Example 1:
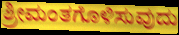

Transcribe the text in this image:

ಶ್ರೀಮಂತಗೊಳಿಸುವುದು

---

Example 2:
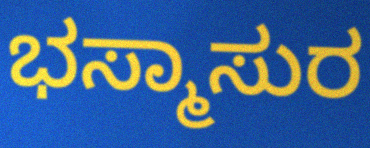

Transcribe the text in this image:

ಭಸ್ಮಾಸುರ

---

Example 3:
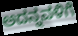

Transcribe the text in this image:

ಅದನ್ನವಳಿಗೆ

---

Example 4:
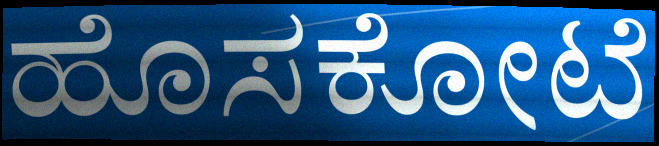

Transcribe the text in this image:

ಹೊಸಕೋಟೆ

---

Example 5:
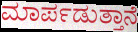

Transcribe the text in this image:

ಮಾರ್ಪಡುತ್ತಾನೆ